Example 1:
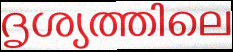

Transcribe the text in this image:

ദൃശ്യത്തിലെ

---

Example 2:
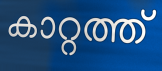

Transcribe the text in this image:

കാറ്റത്ത്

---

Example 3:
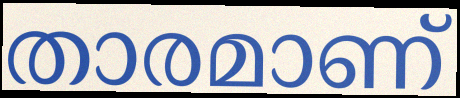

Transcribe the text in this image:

താരമാണ്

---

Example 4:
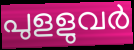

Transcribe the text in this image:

പുളളുവർ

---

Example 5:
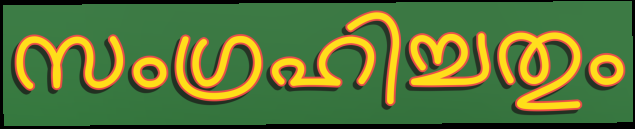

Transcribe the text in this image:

സംഗ്രഹിച്ചതും